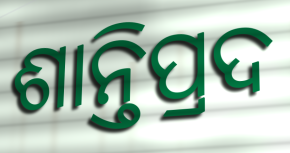
ଶାନ୍ତିପ୍ରଦ